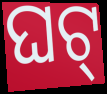
ଘଟ୍